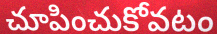
చూపించుకోవటం